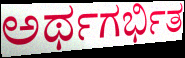
ಅರ್ಥಗರ್ಭಿತ